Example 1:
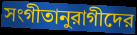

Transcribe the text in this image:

সংগীতানুরাগীদের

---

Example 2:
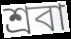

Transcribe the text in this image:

শ্রবা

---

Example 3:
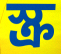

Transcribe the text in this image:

স্ক্র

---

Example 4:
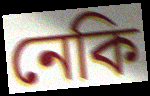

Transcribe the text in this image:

নেকি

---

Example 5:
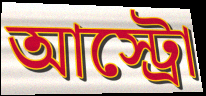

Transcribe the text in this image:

আস্ট্রো